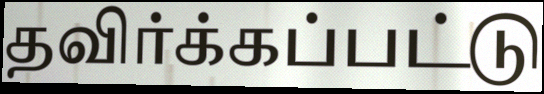
தவிர்க்கப்பட்டு